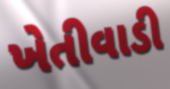
ખેતીવાડી